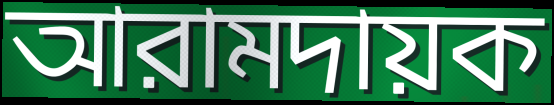
আরামদায়ক